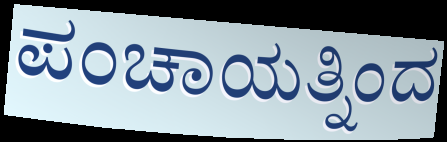
ಪಂಚಾಯತ್ನಿಂದ